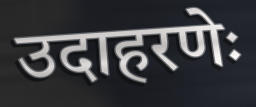
उदाहरणेः